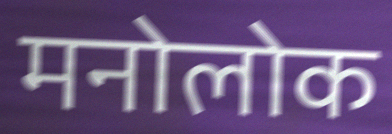
मनोलोक